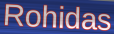
Rohidas